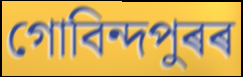
গোবিন্দপুৰৰ